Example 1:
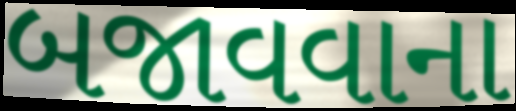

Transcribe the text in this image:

બજાવવાના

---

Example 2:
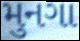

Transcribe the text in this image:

મુનગા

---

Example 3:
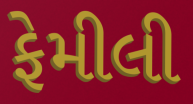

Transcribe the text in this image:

ફેમીલી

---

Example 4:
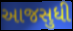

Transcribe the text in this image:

આજસુધી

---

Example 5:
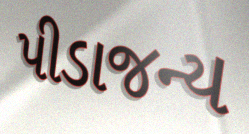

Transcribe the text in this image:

પીડાજન્ય